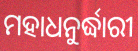
ମହାଧନୁର୍ଦ୍ଧାରୀ